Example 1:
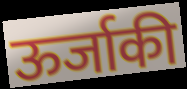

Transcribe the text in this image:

ऊर्जाकी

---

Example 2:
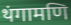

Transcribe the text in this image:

थंगामणि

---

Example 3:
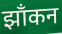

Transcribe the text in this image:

झाँकन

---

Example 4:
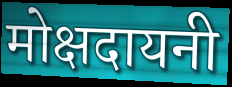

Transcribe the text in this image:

मोक्षदायनी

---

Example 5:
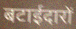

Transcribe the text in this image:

बटाईदारों